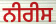
ਨੀਰੀਸ